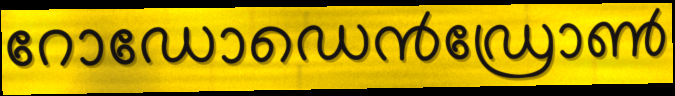
റോഡോഡെൻഡ്രോൺ